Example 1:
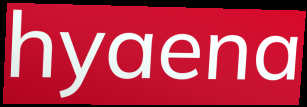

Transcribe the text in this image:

hyaena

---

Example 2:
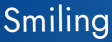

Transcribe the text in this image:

Smiling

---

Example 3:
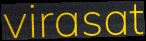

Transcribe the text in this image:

virasat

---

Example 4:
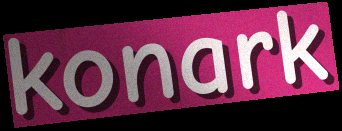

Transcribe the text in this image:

konark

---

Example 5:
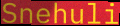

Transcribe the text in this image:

Snehuli